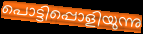
പൊട്ടിപ്പൊളിയുന്നു